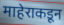
माहेराकडून